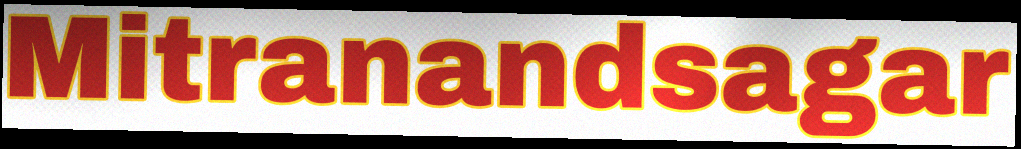
Mitranandsagar